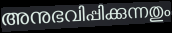
അനുഭവിപ്പിക്കുന്നതും